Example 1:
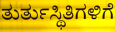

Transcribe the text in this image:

ತುರ್ತುಸ್ಥಿತಿಗಳಿಗೆ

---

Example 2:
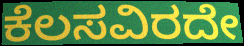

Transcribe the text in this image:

ಕೆಲಸವಿರದೇ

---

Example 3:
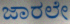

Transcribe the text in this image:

ಜಾರಲೇ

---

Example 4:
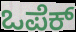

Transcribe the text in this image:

ಒಪೆಕ್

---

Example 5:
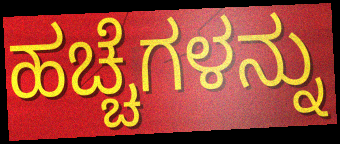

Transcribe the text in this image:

ಹಚ್ಚೆಗಳನ್ನು